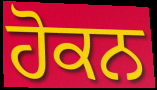
ਹੋਕਨ